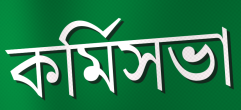
কর্মিসভা